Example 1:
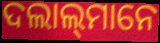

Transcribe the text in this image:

ଦଲାଲ୍‍ମାନେ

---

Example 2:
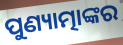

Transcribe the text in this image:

ପୁଣ୍ୟାତ୍ମାଙ୍କର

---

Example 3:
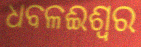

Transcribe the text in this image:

ଧବଳଈଶ୍ବର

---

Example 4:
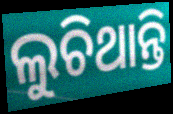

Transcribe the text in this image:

ଲୁଚିଥାନ୍ତି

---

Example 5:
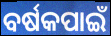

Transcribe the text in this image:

ବର୍ଷକପାଇଁ